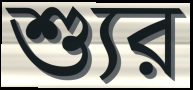
শ্যুর